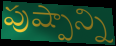
పుష్పాన్ని